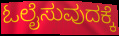
ಓಲೈಸುವುದಕ್ಕೆ